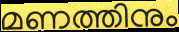
മണത്തിനും